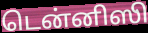
டென்னிஸி